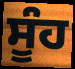
ਸੂੰਹ